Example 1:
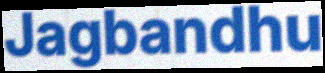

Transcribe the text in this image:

Jagbandhu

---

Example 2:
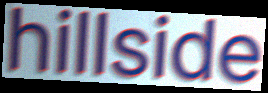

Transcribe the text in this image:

hillside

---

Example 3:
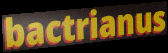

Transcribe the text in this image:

bactrianus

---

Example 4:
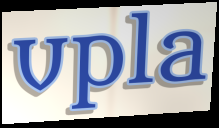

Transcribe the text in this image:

upla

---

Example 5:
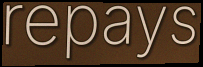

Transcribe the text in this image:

repays